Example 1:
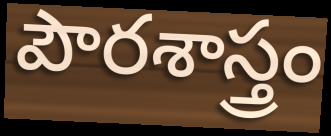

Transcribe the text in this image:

పౌరశాస్త్రం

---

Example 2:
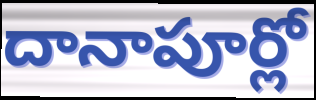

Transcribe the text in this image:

దానాపూర్లో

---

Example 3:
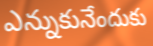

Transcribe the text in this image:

ఎన్నుకునేందుకు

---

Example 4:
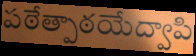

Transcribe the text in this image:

పఠేత్పాఠయేద్వాపి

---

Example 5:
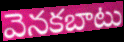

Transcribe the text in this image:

వెనకబాటు